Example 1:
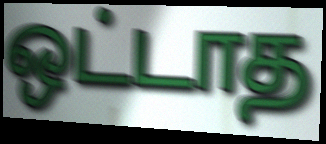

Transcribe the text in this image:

ஒட்டாத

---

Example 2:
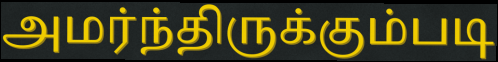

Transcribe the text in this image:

அமர்ந்திருக்கும்படி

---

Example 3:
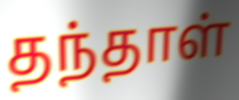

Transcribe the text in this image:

தந்தாள்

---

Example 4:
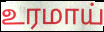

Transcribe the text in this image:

உரமாய்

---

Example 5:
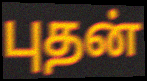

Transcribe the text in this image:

புதன்